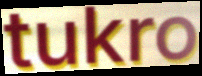
tukro